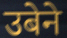
उबेने